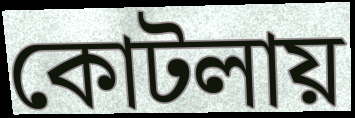
কোটলায়